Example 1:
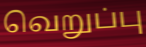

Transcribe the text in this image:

வெறுப்பு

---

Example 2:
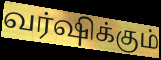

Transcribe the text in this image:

வர்ஷிக்கும்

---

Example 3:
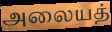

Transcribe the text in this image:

அலையத்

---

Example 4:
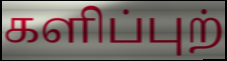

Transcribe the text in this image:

களிப்புற்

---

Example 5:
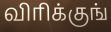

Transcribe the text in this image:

விரிக்குங்